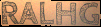
RALHG